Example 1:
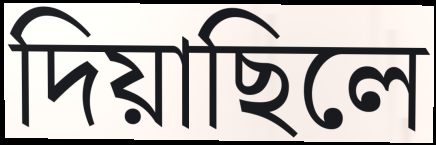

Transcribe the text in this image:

দিয়াছিলে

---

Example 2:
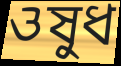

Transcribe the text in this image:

ওষুধ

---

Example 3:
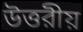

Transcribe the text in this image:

উত্তরীয়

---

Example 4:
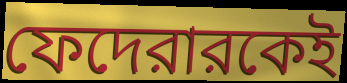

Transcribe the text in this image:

ফেদেরারকেই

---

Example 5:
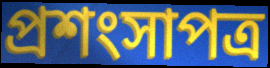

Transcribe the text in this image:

প্রশংসাপত্র